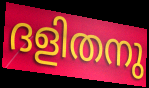
ദളിതനു